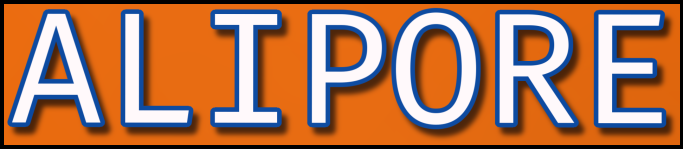
ALIPORE